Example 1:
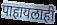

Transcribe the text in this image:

पाहायलाही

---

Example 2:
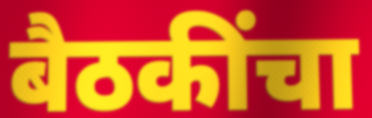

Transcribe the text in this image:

बैठकींचा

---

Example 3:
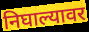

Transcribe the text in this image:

निघाल्यावर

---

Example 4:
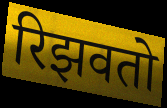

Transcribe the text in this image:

रिझवतो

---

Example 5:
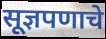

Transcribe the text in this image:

सूज्ञपणाचे